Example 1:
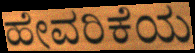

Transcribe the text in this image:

ಹೇವರಿಕೆಯ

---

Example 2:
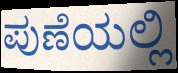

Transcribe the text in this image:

ಪುಣೆಯಲ್ಲಿ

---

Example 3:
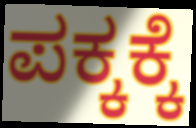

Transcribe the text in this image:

ಪಕ್ಕಕ್ಕೆ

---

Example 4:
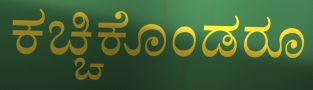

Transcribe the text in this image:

ಕಚ್ಚಿಕೊಂಡರೂ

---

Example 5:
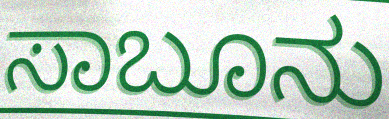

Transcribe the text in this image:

ಸಾಬೂನು